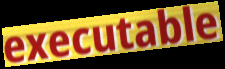
executable